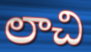
లాచి